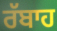
ਰੱਬਾਹ